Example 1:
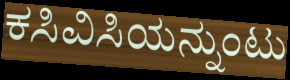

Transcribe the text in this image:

ಕಸಿವಿಸಿಯನ್ನುಂಟು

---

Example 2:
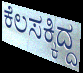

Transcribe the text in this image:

ಕೆಲಸಕ್ಕಿದ್ದ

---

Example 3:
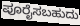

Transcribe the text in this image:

ಪೂರೈಸಬಹುದು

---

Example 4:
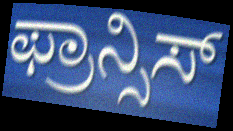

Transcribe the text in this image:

ಫ್ರಾನ್ಸಿಸ್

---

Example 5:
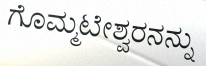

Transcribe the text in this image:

ಗೊಮ್ಮಟೇಶ್ವರನನ್ನು